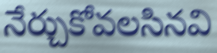
నేర్చుకోవలసినవి